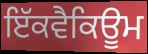
ਇੱਕਵੈਕਿਊਮ